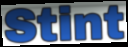
Stint